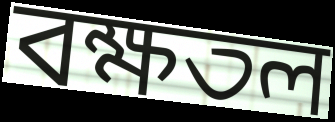
বক্ষতল